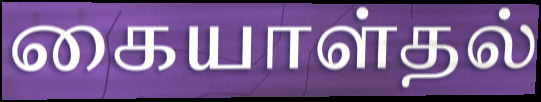
கையாள்தல்